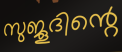
സുജൂദിന്റെ